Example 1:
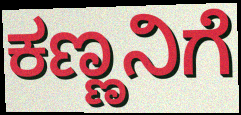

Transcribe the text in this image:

ಕಣ್ಣನಿಗೆ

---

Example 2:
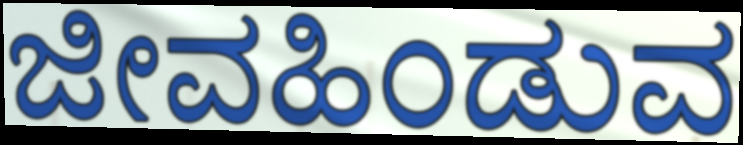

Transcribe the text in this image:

ಜೀವಹಿಂಡುವ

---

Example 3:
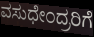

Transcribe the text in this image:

ವಸುಧೇಂದ್ರರಿಗೆ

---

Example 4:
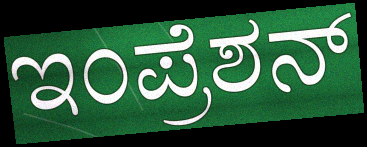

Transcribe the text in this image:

ಇಂಪ್ರೆಶನ್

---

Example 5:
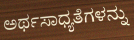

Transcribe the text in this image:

ಅರ್ಥಸಾಧ್ಯತೆಗಳನ್ನು